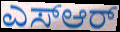
ಎಸ್ಆರ್